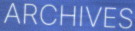
ARCHIVES